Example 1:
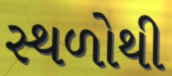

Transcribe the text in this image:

સ્થળોથી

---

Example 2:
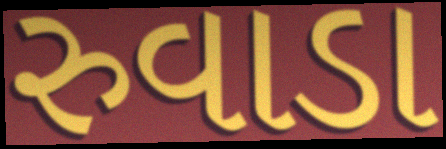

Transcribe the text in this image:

રુવાડા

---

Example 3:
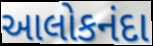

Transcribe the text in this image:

આલોકનંદા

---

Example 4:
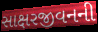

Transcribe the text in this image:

સાક્ષરજીવનની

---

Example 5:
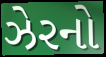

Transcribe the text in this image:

ઝેરનો